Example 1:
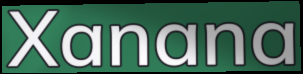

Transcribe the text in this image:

Xanana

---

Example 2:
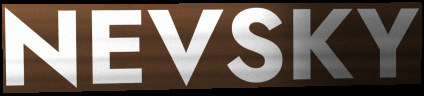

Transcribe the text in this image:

NEVSKY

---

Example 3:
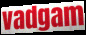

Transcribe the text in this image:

vadgam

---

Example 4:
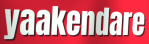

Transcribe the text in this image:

yaakendare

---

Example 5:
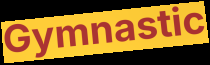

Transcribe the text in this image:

Gymnastic